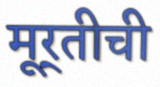
मूर्तीची